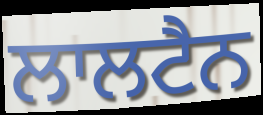
ਲਾਲਟੈਨ